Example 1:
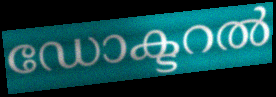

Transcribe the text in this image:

ഡോക്ടറൽ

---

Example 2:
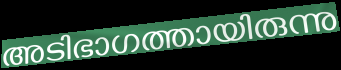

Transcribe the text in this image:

അടിഭാഗത്തായിരുന്നു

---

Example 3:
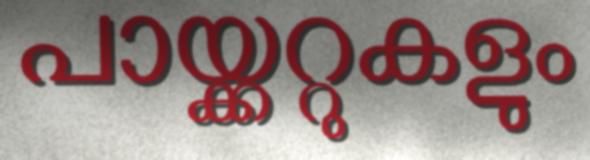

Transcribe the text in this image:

പായ്ക്കറ്റുകളും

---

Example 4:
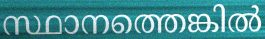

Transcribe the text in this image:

സ്ഥാനത്തെങ്കിൽ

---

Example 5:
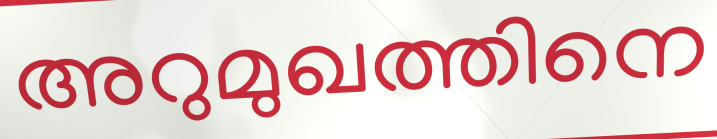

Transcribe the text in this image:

അറുമുഖത്തിനെ